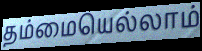
தம்மையெல்லாம்